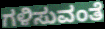
ಗಳಿಸುವಂತೆ